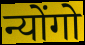
न्योंगो